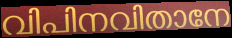
വിപിനവിതാനേ